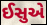
ઈસુએ